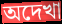
অদেখা